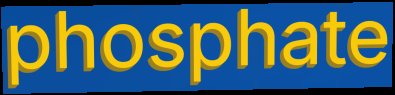
phosphate